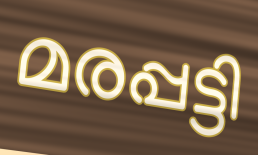
മരപ്പട്ടി